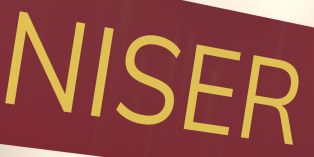
NISER